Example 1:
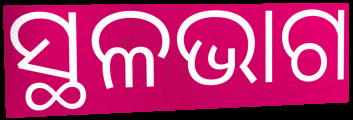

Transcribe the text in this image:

ସ୍ଥଳଭାଗ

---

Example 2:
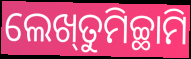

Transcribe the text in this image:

ଲେଖ୍‌ତୁମିଚ୍ଛାମି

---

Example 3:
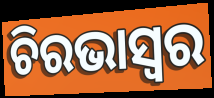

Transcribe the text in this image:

ଚିରଭାସ୍ଵର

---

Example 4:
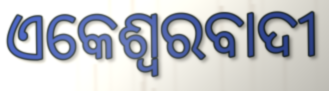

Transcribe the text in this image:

ଏକେଶ୍ଵରବାଦୀ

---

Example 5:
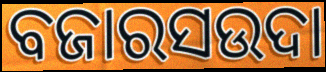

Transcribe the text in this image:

ବଜାରସଉଦା